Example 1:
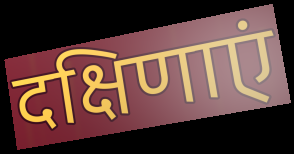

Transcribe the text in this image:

दक्षिणाएं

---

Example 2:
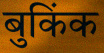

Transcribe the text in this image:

बुकिंक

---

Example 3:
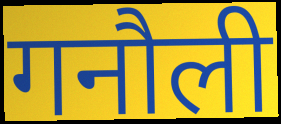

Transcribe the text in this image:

गनौली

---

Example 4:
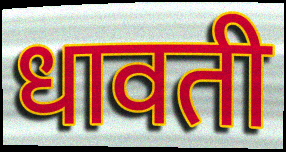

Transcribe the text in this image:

धावती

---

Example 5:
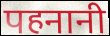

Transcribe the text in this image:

पहनानी